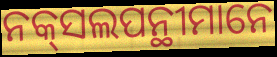
ନକ୍‌ସଲପନ୍ଥୀମାନେ